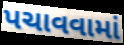
પચાવવામાં